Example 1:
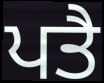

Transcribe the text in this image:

ਪਤੈ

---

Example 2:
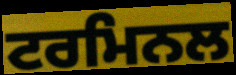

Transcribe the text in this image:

ਟਰਮਿਨਲ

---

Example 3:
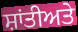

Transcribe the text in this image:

ਸ਼ਾਂਤੀਅਤੇ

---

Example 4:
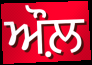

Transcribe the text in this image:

ਔਲ਼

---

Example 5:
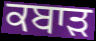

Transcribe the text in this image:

ਕਬਾਡ਼